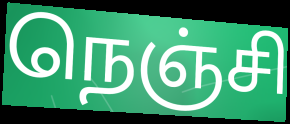
நெஞ்சி